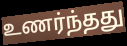
உணர்ந்தது